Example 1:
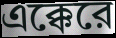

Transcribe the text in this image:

এক্কেরে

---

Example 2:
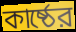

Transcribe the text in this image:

কাষ্ঠের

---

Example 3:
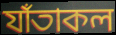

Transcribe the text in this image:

যাঁতাকল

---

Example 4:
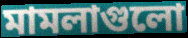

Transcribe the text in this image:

মামলাগুলো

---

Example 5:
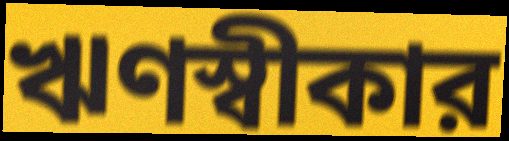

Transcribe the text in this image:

ঋণস্বীকার